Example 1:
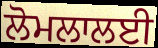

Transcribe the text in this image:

ਲੋਮਲਾਲਈ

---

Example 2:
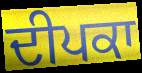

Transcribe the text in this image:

ਦੀਪਕਾ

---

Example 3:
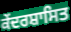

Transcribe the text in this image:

ਕੇਂਦਰਸ਼ਾਸਿਤ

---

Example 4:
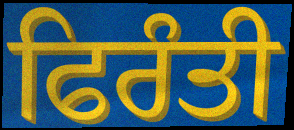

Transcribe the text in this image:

ਫਿਰੰਤੀ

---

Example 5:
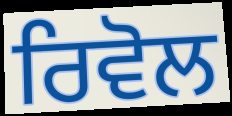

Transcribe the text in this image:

ਰਿਵੋਲ